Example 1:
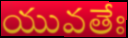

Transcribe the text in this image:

యువతేః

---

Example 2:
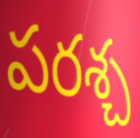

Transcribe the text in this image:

పరశ్చ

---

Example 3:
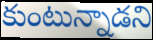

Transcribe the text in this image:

కుంటున్నాడని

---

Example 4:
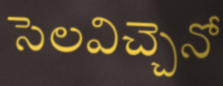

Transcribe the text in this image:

సెలవిచ్చెనో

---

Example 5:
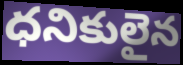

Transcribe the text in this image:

ధనికులైన